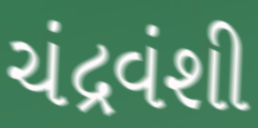
ચંદ્રવંશી